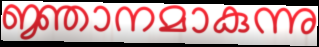
ജ്ഞാനമാകുന്നു